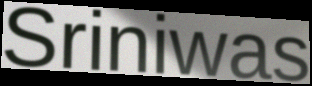
Sriniwas